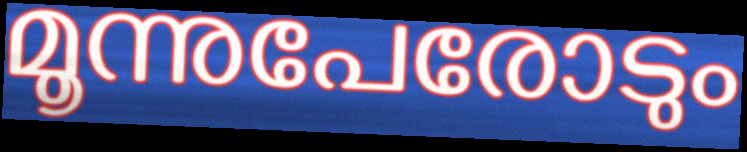
മൂന്നുപേരോടും